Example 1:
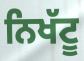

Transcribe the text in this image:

ਨਿਖੱਟੂ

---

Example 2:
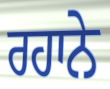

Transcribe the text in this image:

ਰਹਾਨੇ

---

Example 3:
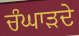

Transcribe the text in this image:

ਚੰਘਾੜਦੇ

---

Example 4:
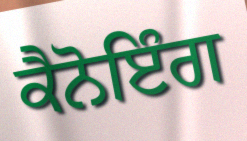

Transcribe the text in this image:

ਕੈਨੋਇੰਗ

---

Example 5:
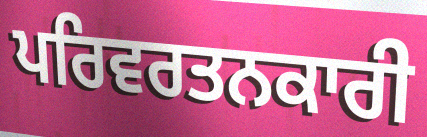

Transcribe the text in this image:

ਪਰਿਵਰਤਨਕਾਰੀ